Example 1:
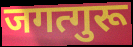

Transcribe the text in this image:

जगत्गुरू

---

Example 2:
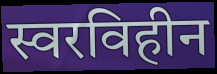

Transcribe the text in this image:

स्वरविहीन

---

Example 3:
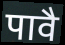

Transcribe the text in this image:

पावै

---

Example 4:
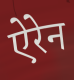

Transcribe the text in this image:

ऐरेन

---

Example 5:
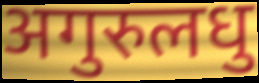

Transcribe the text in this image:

अगुरुलधु